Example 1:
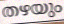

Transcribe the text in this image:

തഴയും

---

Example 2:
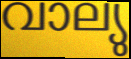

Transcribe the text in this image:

വാല്യു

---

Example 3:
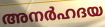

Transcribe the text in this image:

അനർഹദയ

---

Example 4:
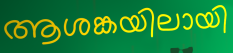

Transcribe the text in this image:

ആശങ്കയിലായി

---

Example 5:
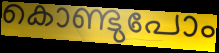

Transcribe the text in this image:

കൊണ്ടുപോം